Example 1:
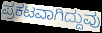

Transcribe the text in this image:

ಪ್ರಕಟವಾಗಿದ್ದುವು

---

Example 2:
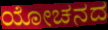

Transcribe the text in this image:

ಯೋಚನದ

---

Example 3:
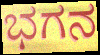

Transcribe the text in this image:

ಭಗನ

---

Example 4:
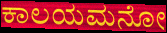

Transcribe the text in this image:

ಕಾಲಯಮನೋ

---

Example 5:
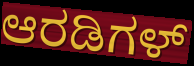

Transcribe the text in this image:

ಆರಡಿಗಳ್